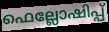
ഫെല്ലോഷിപ്പ്